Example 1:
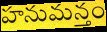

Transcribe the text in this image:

హనుమన్తం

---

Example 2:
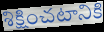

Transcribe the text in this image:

శిక్షించటానికి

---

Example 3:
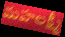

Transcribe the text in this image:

మహలక్ష్మీ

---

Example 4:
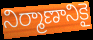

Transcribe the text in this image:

నిర్మాణానికై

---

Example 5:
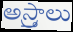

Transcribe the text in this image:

అస్ర్తాలు